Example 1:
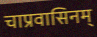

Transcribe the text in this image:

चाप्रवासिनम्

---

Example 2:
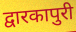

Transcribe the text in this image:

द्वारकापुरी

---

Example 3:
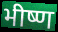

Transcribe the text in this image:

भीष्ण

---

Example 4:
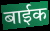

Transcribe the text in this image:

बाईक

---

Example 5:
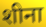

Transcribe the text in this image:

शीना